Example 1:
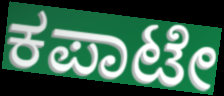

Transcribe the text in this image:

ಕಪಾಟೇ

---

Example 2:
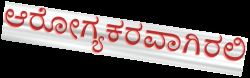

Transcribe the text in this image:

ಆರೋಗ್ಯಕರವಾಗಿರಲಿ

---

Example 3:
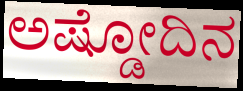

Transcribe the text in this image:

ಅಷ್ಡೋದಿನ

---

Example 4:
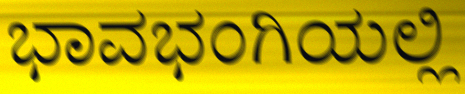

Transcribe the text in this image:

ಭಾವಭಂಗಿಯಲ್ಲಿ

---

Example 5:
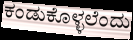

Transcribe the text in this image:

ಕಂಡುಕೊಳ್ಳಲೆಂದು